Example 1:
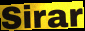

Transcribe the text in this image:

Sirar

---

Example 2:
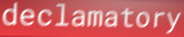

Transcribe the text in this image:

declamatory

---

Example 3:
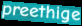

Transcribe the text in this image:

preethige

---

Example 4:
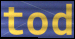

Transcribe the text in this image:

tod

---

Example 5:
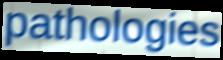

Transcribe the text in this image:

pathologies